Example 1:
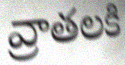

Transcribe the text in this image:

వ్రాతలకి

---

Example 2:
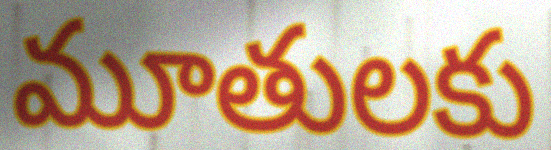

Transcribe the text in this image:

మూతులకు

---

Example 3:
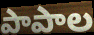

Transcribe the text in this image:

పాపాల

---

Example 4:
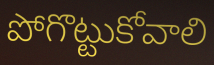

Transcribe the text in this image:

పోగొట్టుకోవాలి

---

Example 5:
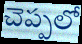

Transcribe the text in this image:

చెప్పలో